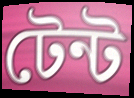
টেন্ট